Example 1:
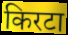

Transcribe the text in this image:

किरटा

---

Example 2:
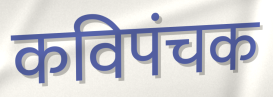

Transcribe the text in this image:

कविपंचक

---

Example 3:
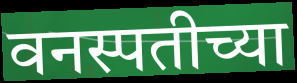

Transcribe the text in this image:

वनस्पतीच्या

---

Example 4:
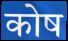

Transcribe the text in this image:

कोष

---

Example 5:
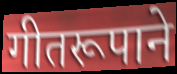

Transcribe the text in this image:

गीतरूपाने